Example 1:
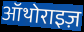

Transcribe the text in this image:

ऑथोराइज़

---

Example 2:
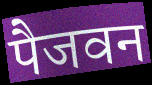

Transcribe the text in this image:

पैजवन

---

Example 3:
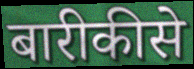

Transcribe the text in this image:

बारीकीसे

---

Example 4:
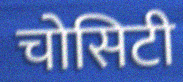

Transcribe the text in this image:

चोसिटी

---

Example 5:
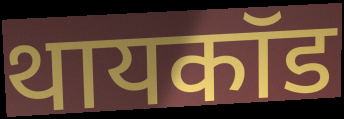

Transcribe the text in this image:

थायकॉड